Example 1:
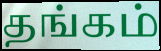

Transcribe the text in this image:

தங்கம்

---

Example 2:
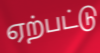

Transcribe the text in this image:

ஏற்பட்டு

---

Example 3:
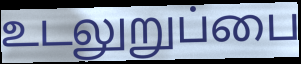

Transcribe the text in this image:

உடலுறுப்பை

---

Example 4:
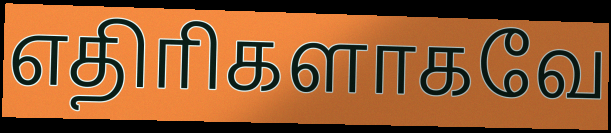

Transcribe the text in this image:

எதிரிகளாகவே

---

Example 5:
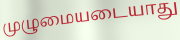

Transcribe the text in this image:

முழுமையடையாது